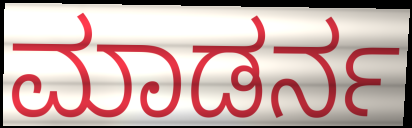
ಮಾಡರ್ನ